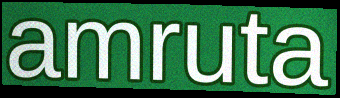
amruta